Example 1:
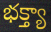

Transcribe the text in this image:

భక్త్యా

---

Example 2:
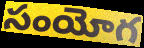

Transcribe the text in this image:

సంయోగ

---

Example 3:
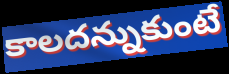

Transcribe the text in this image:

కాలదన్నుకుంటే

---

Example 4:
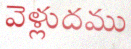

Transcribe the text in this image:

వెళ్లుదము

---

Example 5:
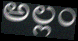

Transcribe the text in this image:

అల్లం